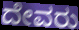
ದೇವರು